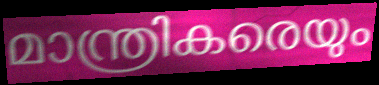
മാന്ത്രികരെയും